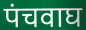
पंचवाघ